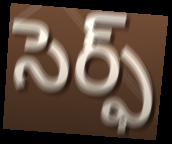
సెర్ఫ్